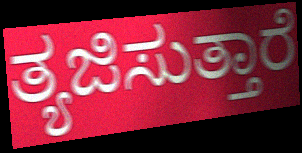
ತ್ಯಜಿಸುತ್ತಾರೆ